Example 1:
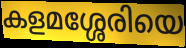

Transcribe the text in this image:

കളമശ്ശേരിയെ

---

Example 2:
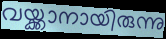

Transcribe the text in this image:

വയ്ക്കാനായിരുന്നു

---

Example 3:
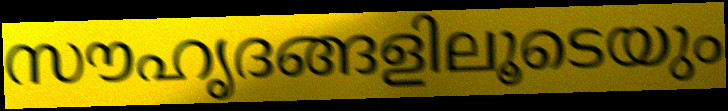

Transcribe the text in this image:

സൗഹൃദങ്ങളിലൂടെയും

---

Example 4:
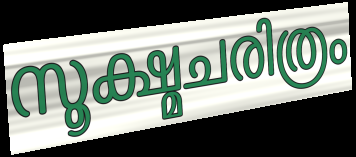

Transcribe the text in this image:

സൂക്ഷ്മചരിത്രം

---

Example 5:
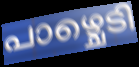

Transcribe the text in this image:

പാഴ്ചെടി